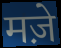
मज़े